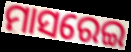
ମାସରେଇ